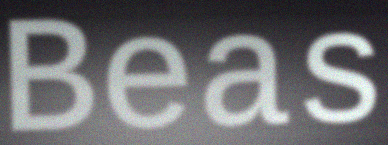
Beas